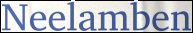
Neelamben